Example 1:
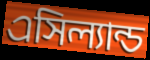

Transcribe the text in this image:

এসিল্যান্ড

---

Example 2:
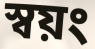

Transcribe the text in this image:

স্বয়ং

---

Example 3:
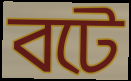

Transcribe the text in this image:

বটে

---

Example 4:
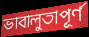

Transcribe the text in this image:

ভাবালুতাপূর্ণ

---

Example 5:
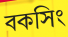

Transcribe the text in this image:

বকসিং